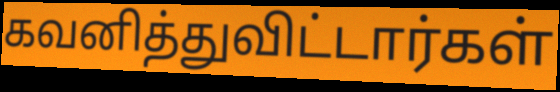
கவனித்துவிட்டார்கள்